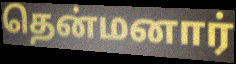
தென்மனார்